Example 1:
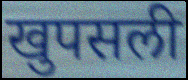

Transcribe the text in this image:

खुपसली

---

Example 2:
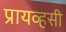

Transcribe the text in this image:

प्रायव्हसी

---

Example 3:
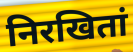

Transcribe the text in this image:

निरखितां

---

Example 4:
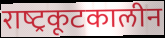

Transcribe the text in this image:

राष्ट्रकूटकालीन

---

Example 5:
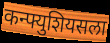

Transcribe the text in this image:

कन्फ्युशियसला